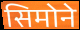
सिमोने